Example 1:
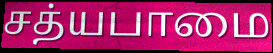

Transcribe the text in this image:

சத்யபாமை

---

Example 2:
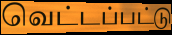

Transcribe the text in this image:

வெட்டப்பட்டு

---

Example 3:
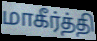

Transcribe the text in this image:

மாகீர்த்தி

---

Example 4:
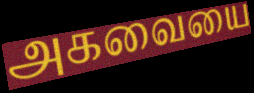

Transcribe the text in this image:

அகவையை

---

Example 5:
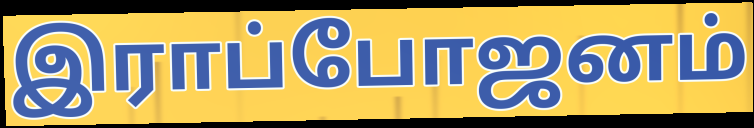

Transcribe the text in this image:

இராப்போஜனம்